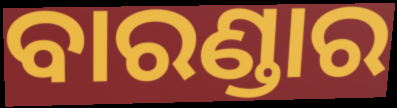
ବାରଣ୍ଡାର